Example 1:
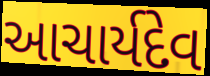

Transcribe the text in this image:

આચાર્યદેવ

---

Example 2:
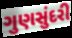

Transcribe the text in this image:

ગુણસુંદરી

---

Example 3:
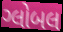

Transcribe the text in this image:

ગ્લોબલ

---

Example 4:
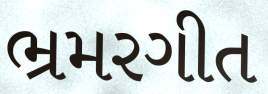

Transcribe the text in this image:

ભ્રમરગીત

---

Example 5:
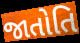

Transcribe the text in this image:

જાતોતિ